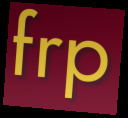
frp